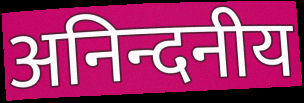
अनिन्दनीय